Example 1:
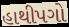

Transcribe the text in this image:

હાથીપગો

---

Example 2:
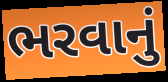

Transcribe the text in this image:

ભરવાનું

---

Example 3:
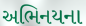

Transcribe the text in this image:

અભિનયના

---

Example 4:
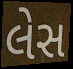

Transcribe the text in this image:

લેસ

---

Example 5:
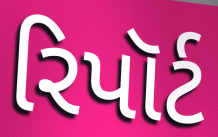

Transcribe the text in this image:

રિપૉર્ટ